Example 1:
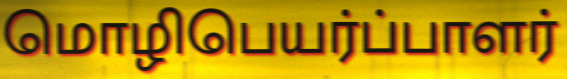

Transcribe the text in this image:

மொழிபெயர்ப்பாளர்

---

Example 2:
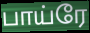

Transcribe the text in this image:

பாய்ரே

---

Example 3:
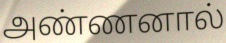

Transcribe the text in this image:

அண்ணனால்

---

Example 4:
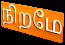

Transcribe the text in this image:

நிறமே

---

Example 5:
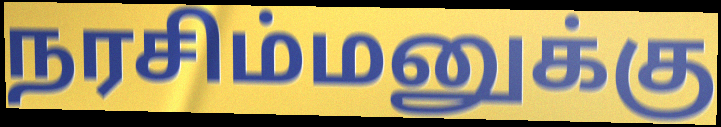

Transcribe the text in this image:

நரசிம்மனுக்கு